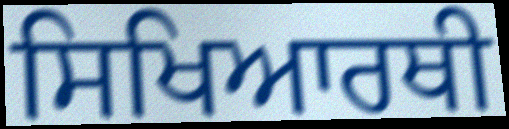
ਸਿਖਿਆਰਥੀ